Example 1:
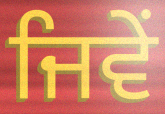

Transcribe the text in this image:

ਜਿਵੇੰ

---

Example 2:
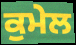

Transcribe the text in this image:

ਕੁਮੇਲ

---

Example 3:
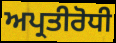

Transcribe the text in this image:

ਅਪ੍ਰਤੀਰੋਧੀ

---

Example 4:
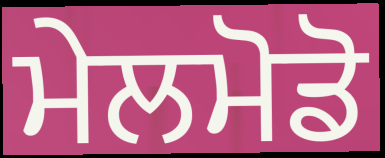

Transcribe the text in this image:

ਮੇਲਮੋਡੋ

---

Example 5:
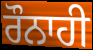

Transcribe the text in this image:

ਰੌਨਾਹੀ